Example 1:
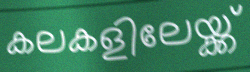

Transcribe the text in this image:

കലകളിലേയ്ക്ക്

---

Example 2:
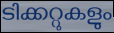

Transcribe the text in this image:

ടിക്കറ്റുകളും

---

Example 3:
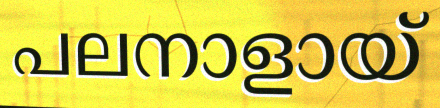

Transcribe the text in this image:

പലനാളായ്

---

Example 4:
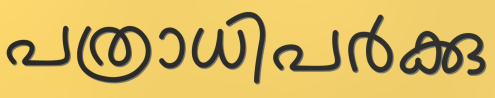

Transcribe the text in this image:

പത്രാധിപർക്കു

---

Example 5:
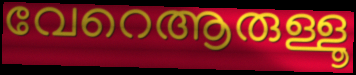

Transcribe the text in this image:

വേറെആരുള്ളൂ